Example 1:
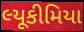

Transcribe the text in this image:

લ્યૂકીમિયા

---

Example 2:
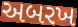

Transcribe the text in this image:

અબરખ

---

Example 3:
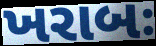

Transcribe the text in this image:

ખરાબઃ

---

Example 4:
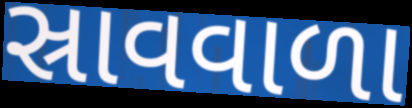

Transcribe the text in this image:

સ્રાવવાળા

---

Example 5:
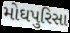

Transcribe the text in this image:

મોઘપુરિસા